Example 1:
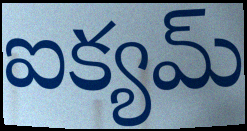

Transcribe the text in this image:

ఐక్యమ్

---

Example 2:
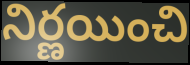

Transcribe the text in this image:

నిర్ణయించి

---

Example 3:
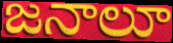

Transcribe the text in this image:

జనాలూ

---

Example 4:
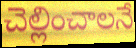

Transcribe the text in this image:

చెల్లించాలనే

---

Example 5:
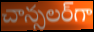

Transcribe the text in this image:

చాన్సలర్‌గా